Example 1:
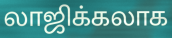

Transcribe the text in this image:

லாஜிக்கலாக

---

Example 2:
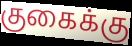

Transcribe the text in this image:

குகைக்கு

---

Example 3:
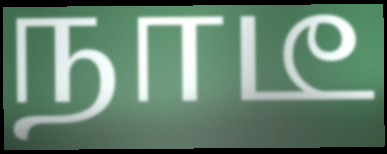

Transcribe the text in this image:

நாடீ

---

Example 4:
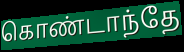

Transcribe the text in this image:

கொண்டாந்தே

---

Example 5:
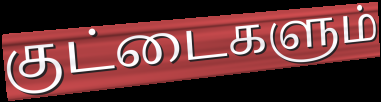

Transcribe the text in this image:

குட்டைகளும்